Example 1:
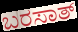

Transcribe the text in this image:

ಬರಸಾತ್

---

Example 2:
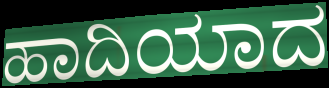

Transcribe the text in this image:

ಹಾದಿಯಾದ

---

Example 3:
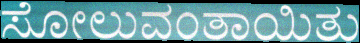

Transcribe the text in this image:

ಸೋಲುವಂತಾಯಿತು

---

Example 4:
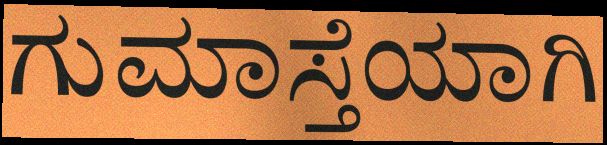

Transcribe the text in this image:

ಗುಮಾಸ್ತೆಯಾಗಿ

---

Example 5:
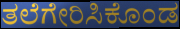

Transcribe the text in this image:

ತಲೆಗೇರಿಸಿಕೊಂಡ